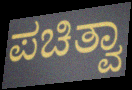
ಪಚಿತ್ವಾ